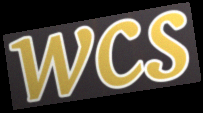
wcs